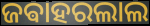
ଜଵାହରଲାଲ